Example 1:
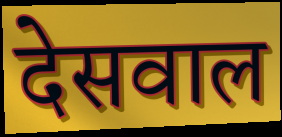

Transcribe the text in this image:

देसवाल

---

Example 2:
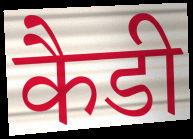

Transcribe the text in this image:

कैडी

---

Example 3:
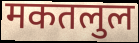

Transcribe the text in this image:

मकतलुल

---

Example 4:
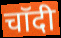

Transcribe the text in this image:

चॉदी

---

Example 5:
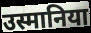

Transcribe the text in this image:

उस्मानिया